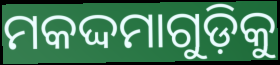
ମକଦ୍ଦମାଗୁଡ଼ିକୁ